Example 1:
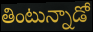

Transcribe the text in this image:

తింటున్నాడో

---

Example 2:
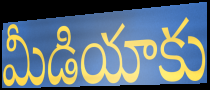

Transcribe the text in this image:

మీడియాకు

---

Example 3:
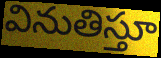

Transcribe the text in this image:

వినుతిస్తూ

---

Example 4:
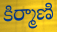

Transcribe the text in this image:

కిర్మాణి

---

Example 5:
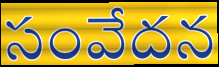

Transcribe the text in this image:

సంవేదన